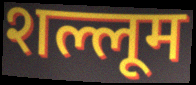
शल्लूम